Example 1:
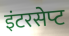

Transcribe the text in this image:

इंटरसेप्‍ट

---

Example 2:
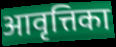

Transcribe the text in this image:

आवृत्तिका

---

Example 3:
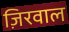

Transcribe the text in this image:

ज़िरवाल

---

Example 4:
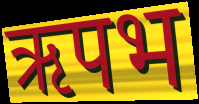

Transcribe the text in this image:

ऋपभ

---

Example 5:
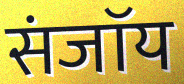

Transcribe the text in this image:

संजॉय